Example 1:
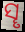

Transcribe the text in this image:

ସୄ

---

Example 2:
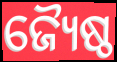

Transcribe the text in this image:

ଜ୍ଯୈଷ୍ଠ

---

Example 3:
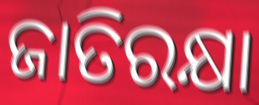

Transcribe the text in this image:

ଜାତିରକ୍ଷା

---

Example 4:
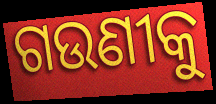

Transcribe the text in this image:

ଗଉଣୀକୁ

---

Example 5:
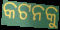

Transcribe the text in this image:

କଟନକୁ